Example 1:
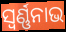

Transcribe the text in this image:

ସ୍ବର୍ଣ୍ଣନାଭ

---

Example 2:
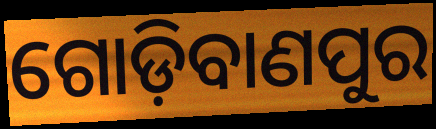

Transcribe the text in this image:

ଗୋଡ଼ିବାଣପୁର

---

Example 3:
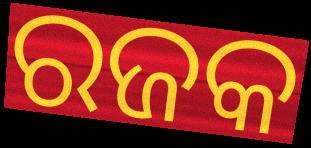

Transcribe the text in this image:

ରଜକ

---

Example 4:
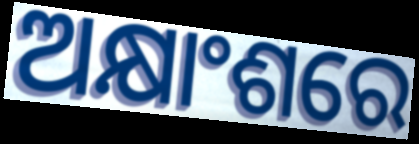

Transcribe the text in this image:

ଅକ୍ଷାଂଶରେ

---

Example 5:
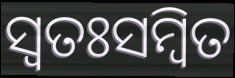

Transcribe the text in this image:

ସ୍ୱତଃସମ୍ବିତ